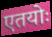
एतयोः